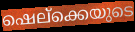
ഷെല്ക്കെയുടെ